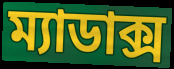
ম্যাডাক্স